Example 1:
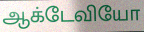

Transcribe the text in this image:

ஆக்டேவியோ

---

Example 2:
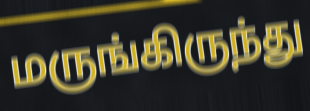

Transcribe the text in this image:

மருங்கிருந்து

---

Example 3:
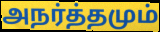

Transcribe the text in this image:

அநர்த்தமும்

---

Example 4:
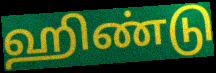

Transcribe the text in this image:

ஹிண்டு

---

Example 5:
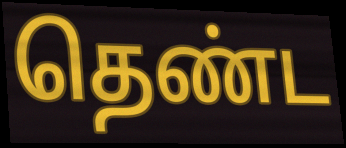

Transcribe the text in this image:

தெண்ட